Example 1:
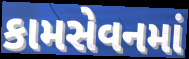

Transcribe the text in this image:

કામસેવનમાં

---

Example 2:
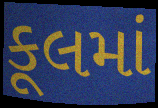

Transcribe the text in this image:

કૂલમાં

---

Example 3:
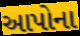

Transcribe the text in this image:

આપોના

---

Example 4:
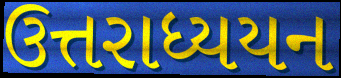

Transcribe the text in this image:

ઉત્તરાધ્યયન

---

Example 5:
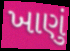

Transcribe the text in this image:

ખાણું